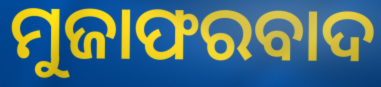
ମୁଜାଫରବାଦ